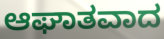
ಆಘಾತವಾದ